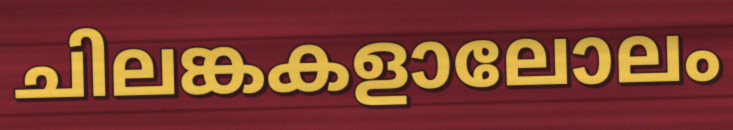
ചിലങ്കകളാലോലം